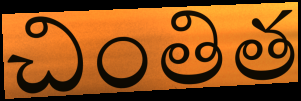
చింతిత